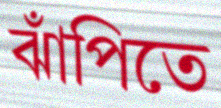
ঝাঁপিতে